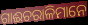
ଗାଈଚରାଳିମାନେ